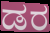
ಡರ